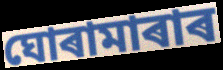
ঘোৰামাৰাৰ